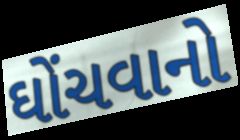
ઘોંચવાનો